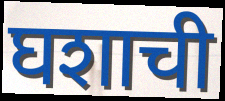
घशाची